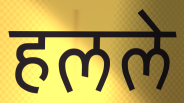
हलले